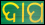
ଦାପ